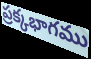
ప్రక్కభాగము